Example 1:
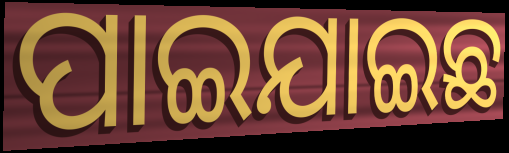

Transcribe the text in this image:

ପାଇଯାଇଛ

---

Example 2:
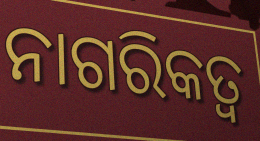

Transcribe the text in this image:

ନାଗରିକତ୍ୱ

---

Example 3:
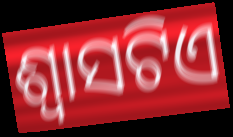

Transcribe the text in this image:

ଶ୍ଵାସଟିଏ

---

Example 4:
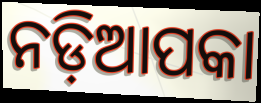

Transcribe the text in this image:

ନଡ଼ିଆପକା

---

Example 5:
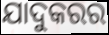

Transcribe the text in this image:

ଯାଦୁକରର